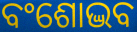
ବଂଶୋଦ୍ଭବ